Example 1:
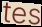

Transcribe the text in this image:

tes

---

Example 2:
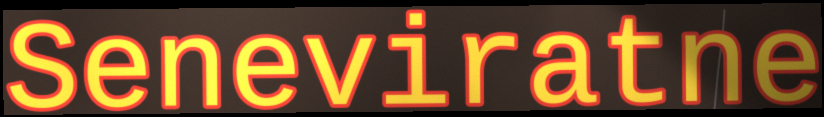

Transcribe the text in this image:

Seneviratne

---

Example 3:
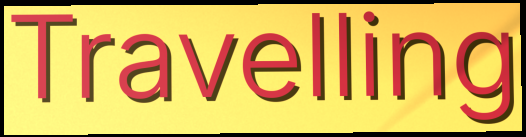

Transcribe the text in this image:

Travelling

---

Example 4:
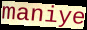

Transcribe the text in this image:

maniye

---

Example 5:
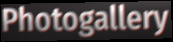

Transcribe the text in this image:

Photogallery